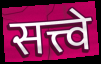
सत्त्वे